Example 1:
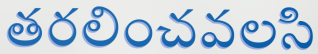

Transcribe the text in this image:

తరలించవలసి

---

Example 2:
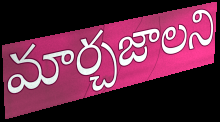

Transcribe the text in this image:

మార్చజాలని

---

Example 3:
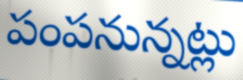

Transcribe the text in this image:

పంపనున్నట్లు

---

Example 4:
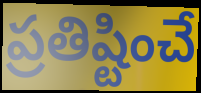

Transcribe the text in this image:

ప్రతిష్టించే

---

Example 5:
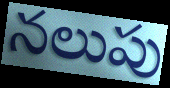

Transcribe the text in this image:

నలుపు